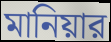
মানিয়ার